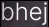
bhej